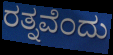
ರತ್ನವೆಂದು